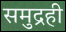
समुद्रही